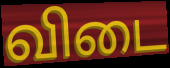
விடை